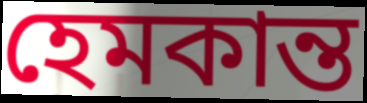
হেমকান্ত